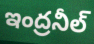
ఇంద్రనీల్